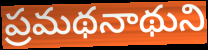
ప్రమథనాథుని